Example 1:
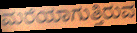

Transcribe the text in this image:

ಮರೆಯಾಗುತ್ತಿರುವ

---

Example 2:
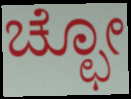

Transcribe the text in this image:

ಚ್ಛೋ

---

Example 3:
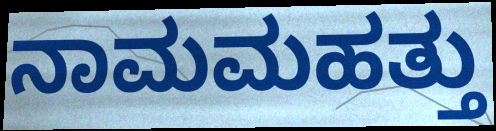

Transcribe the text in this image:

ನಾಮಮಹತ್ತು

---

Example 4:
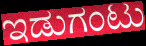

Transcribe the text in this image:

ಇಡುಗಂಟು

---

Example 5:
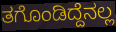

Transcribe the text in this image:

ತಗೊಂಡಿದ್ದೆನಲ್ಲ